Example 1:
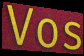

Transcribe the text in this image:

Vos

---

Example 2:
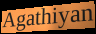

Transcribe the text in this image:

Agathiyan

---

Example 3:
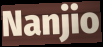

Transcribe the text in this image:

Nanjio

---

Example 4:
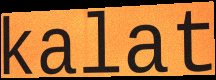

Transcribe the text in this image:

kalat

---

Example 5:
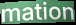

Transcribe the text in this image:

mation